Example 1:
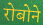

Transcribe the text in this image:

रोबोने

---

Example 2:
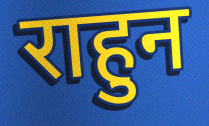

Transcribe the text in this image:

राहुन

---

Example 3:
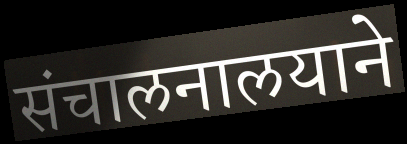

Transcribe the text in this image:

संचालनालयाने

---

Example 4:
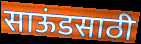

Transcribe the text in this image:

साऊंडसाठी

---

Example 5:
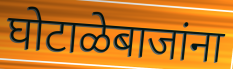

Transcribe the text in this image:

घोटाळेबाजांना